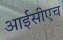
आईसीएच